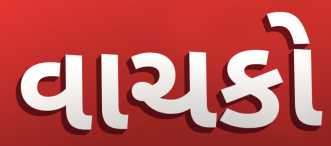
વાચકો